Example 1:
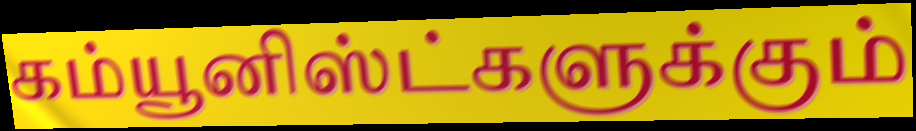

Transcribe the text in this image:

கம்யூனிஸ்ட்களுக்கும்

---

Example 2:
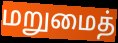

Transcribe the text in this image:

மறுமைத்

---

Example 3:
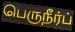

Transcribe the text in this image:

பெருநீர்ப்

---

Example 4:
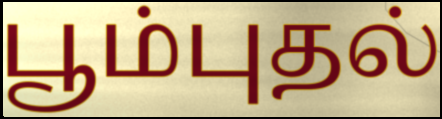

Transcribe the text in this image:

பூம்புதல்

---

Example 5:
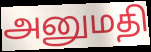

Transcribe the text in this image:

அனுமதி